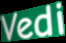
Vedi